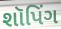
શૉપિંગ